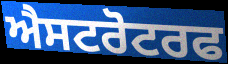
ਐਸਟਰੋਟਰਫ